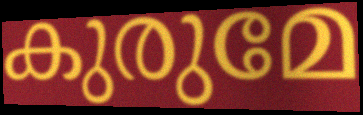
കുരുമേ